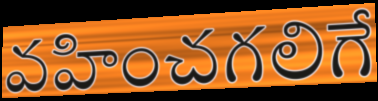
వహించగలిగే